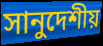
সানুদেশীয়